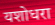
यशोधरा